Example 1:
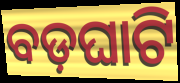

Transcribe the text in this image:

ବଡ଼ଘାଟି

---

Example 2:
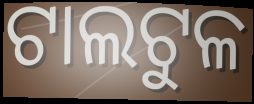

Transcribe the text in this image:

ଟାଲଟୁଳ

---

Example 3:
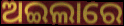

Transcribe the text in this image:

ଅଇଲାରେ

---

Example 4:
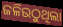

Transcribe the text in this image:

ଜଳିଉଠୁଥିଲା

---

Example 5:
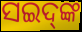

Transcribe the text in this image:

ସଇଦ୍‌ଙ୍କ